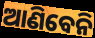
ଆଣିବେନି